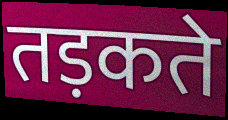
तड़कते